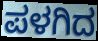
ಪಳಗಿದ